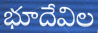
భూదేవిల